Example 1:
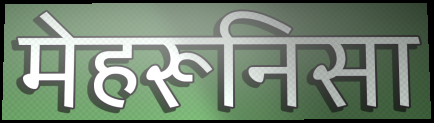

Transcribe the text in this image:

मेहरूनिसा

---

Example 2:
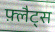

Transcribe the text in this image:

फ़्लैट्स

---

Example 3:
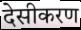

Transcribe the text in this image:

देसीकरण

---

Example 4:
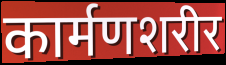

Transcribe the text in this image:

कार्मणशरीर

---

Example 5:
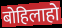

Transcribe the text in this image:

बोहिलाहो